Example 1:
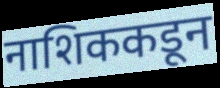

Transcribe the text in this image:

नाशिककडून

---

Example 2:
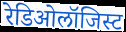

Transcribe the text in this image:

रेडिओलॉजिस्ट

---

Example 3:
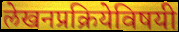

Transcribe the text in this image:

लेखनप्रक्रियेविषयी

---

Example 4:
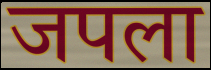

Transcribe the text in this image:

जपला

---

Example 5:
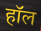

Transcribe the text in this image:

हॉल